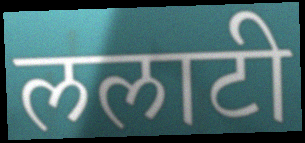
ललाटी